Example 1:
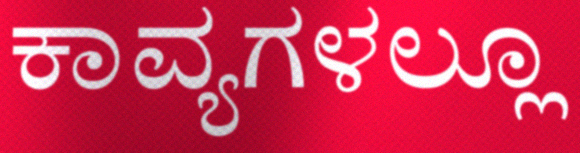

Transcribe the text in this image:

ಕಾವ್ಯಗಳಲ್ಲೂ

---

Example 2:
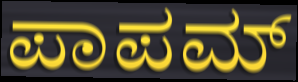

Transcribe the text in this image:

ಪಾಪಮ್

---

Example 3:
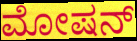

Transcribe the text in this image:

ಮೋಷನ್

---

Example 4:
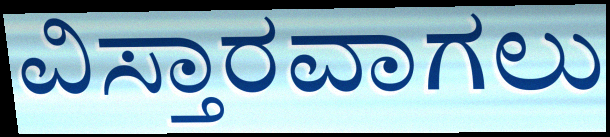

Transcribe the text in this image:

ವಿಸ್ತಾರವಾಗಲು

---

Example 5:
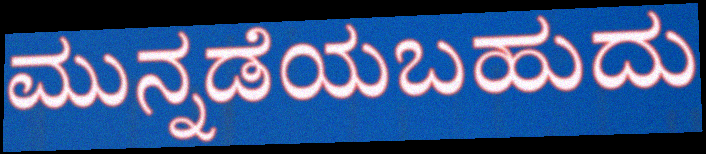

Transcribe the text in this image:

ಮುನ್ನಡೆಯಬಹುದು